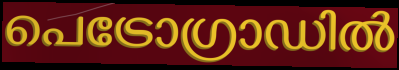
പെട്രോഗ്രാഡിൽ